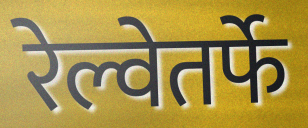
रेल्वेतर्फे